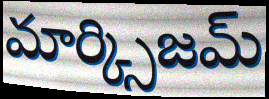
మార్క్సిజమ్